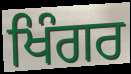
ਖਿੰਗਰ